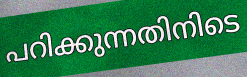
പറിക്കുന്നതിനിടെ